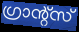
ഗ്രാന്റ്സ്